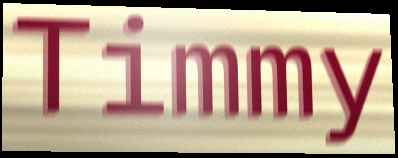
Timmy